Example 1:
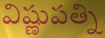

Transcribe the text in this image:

విష్ణుపత్ని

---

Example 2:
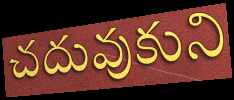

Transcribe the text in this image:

చదువుకుని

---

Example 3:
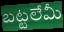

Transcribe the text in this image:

బట్టలేమీ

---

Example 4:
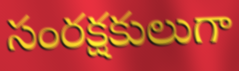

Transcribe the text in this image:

సంరక్షకులుగా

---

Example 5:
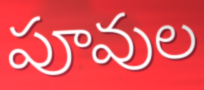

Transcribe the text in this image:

పూవుల